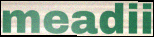
meadii